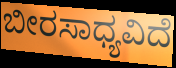
ಬೀರಸಾಧ್ಯವಿದೆ